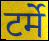
टर्मे